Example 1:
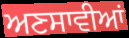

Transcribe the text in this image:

ਅਣਸਾਵੀਆਂ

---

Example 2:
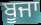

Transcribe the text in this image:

ਬੂਜਾ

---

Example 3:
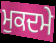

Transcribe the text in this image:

ਮੁਕਦਮੇ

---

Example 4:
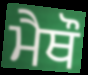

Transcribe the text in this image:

ਮੈਥੌ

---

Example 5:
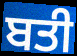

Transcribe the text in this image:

ਬਤੀ